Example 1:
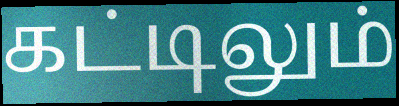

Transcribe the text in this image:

கட்டிலும்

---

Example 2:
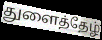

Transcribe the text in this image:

துளைத்தேழ்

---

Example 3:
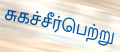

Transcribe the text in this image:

சுகச்சீர்பெற்று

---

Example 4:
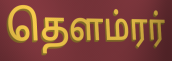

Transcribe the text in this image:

தௌம்ரர்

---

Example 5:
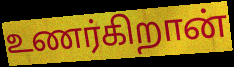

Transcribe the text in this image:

உணர்கிறான்